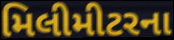
મિલીમીટરના